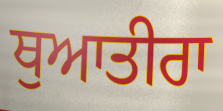
ਥੁਆਤੀਰਾ